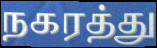
நகரத்து